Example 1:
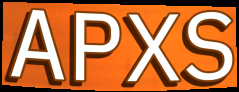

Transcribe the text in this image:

APXS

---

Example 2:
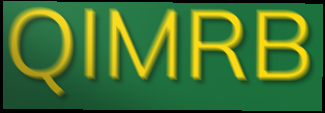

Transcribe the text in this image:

QIMRB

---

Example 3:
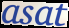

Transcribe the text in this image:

asat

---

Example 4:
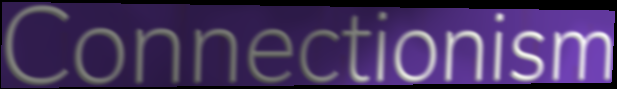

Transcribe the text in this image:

Connectionism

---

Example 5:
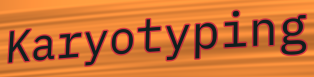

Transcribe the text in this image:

Karyotyping